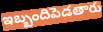
ఇబ్బందిపెడతారు